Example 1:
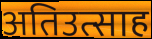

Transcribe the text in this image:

अतिउत्साह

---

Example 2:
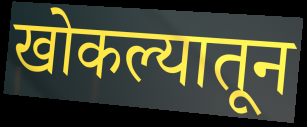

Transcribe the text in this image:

खोकल्यातून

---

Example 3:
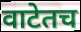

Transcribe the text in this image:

वाटेतच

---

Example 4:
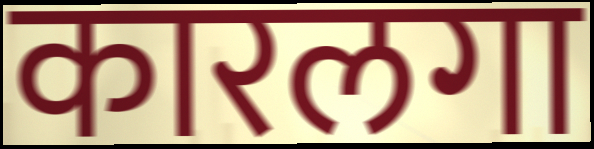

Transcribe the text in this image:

कारलगा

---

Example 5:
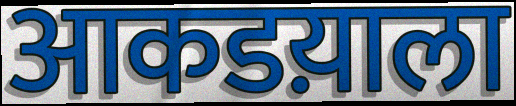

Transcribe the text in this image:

आकडय़ाला